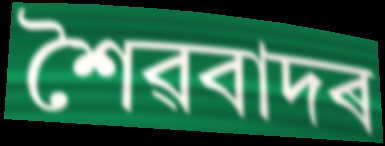
শৈৱবাদৰ